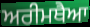
ਅਰੀਮਥੈਆ